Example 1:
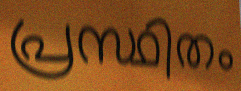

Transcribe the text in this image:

പ്രസ്ഥിതം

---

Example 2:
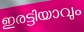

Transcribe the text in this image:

ഇരട്ടിയാവും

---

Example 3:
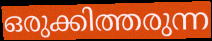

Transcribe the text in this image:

ഒരുക്കിത്തരുന്ന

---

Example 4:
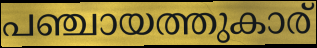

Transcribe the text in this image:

പഞ്ചായത്തുകാര്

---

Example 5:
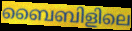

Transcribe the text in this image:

ബൈബിളിലെ